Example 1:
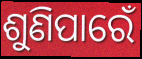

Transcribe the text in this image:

ଶୁଣିପାରେଁ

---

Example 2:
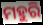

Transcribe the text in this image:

ମହୁରି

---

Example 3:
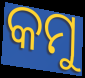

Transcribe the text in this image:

କମୁ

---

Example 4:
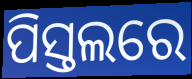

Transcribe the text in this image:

ପିସ୍ତଲରେ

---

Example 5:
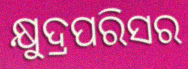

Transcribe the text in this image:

କ୍ଷୁଦ୍ରପରିସର